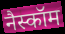
नैस्कॉम